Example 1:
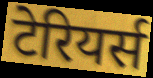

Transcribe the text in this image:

टेरियर्स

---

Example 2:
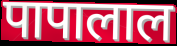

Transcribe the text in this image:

पापालाल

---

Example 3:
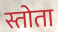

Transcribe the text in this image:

स्तोता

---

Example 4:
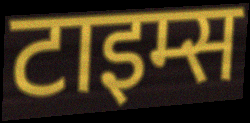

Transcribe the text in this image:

टाइम्‍स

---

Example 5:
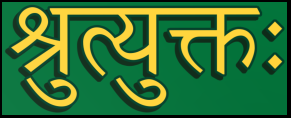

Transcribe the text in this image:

श्रुत्युक्तः